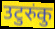
उटुरुंकु